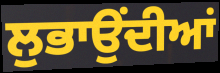
ਲੁਭਾਉਂਦੀਆਂ